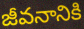
జీవనానికి